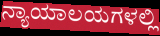
ನ್ಯಾಯಾಲಯಗಳಲ್ಲಿ